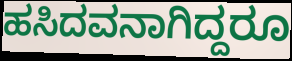
ಹಸಿದವನಾಗಿದ್ದರೂ